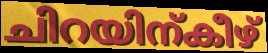
ചിറയിന്കീഴ്